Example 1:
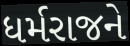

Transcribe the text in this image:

ધર્મરાજને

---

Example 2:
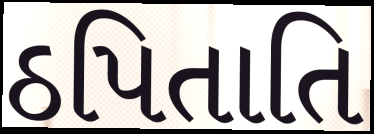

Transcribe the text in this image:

ઠપિતાતિ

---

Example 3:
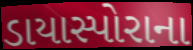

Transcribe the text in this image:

ડાયાસ્પોરાના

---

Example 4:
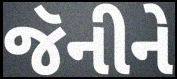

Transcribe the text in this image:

જૅનીને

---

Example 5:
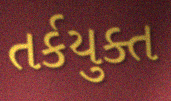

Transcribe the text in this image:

તર્કયુક્ત